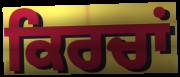
ਕਿਰਚਾਂ